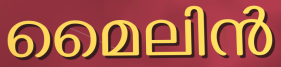
മൈലിൻ